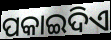
ପକାଇଦିଏ